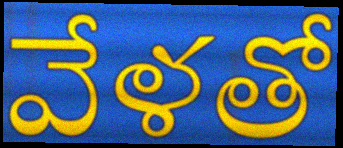
వేళతో